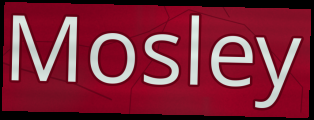
Mosley